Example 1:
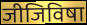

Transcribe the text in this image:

जीजिविषा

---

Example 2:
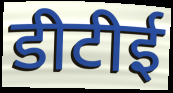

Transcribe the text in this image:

डीटीई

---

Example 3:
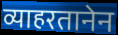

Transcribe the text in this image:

व्याहरतानेन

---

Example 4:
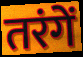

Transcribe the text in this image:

तरंगें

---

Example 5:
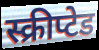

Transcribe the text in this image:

स्क्रीप्टेड